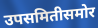
उपसमितीसमोर